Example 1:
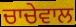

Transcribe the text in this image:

ਚਾਚੇਵਾਲ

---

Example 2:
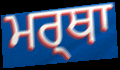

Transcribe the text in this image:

ਮਰ੍ਥਾ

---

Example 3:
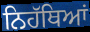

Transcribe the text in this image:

ਨਿਹੱਥਿਆਂ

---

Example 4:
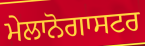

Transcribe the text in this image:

ਮੇਲਾਨੋਗਾਸਟਰ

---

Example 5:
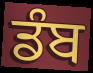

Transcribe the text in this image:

ਡੰਬ